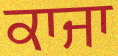
ਕਾਜਾ